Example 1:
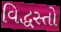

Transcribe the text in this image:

વિદ્ધસ્તો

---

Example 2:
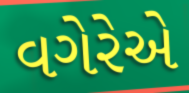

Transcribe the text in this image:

વગેરેએ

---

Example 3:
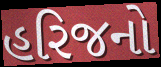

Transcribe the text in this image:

હરિજનો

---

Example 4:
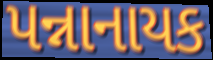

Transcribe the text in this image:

પન્નાનાયક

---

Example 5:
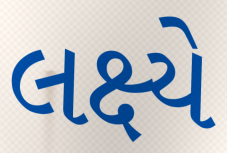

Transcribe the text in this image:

લક્ષ્યે